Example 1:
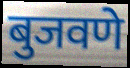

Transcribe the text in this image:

बुजवणे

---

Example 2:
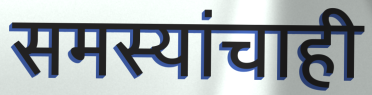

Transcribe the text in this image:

समस्यांचाही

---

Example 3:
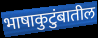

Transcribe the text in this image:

भाषाकुटुंबातील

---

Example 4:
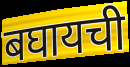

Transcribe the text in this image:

बघायची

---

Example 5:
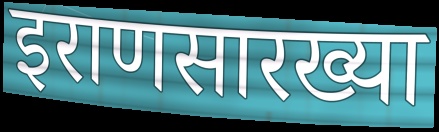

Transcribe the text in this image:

इराणसारख्या